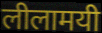
लीलामयी